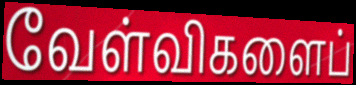
வேள்விகளைப்